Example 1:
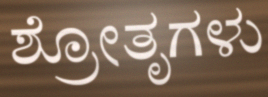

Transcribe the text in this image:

ಶ್ರೋತೃಗಳು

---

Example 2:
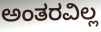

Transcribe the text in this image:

ಅಂತರವಿಲ್ಲ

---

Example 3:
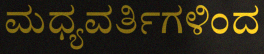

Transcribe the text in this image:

ಮಧ್ಯವರ್ತಿಗಳಿಂದ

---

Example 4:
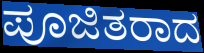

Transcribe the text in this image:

ಪೂಜಿತರಾದ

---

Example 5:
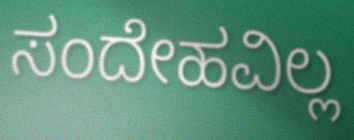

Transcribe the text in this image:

ಸಂದೇಹವಿಲ್ಲ